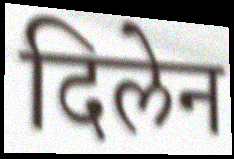
दिलेन